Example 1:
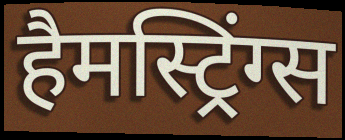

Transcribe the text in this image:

हैमस्ट्रिंग्स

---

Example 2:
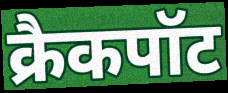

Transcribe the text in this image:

क्रैकपॉट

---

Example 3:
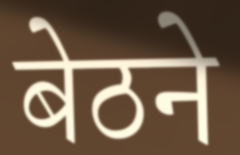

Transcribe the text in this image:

बेठने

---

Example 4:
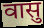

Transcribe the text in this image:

वासु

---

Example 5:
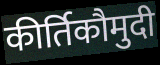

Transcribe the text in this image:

कीर्तिकौमुदी